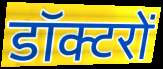
डॉक्टरों